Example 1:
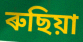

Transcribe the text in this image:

ৰুছিয়া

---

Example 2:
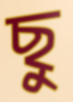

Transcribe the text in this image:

ছু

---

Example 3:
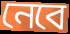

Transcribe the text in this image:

নেবে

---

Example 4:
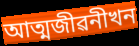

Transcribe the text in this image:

আত্মজীৱনীখন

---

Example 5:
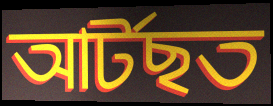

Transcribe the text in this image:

আৰ্টছত